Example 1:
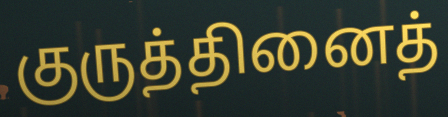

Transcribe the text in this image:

குருத்தினைத்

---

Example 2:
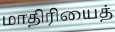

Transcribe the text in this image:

மாதிரியைத்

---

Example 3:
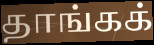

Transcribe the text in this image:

தாங்கக்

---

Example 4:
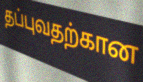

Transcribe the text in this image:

தப்புவதற்கான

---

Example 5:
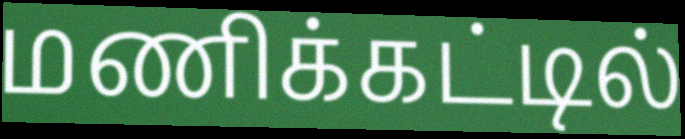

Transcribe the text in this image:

மணிக்கட்டில்